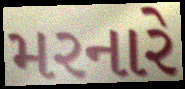
મરનારે